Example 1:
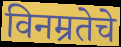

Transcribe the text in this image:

विनम्रतेचे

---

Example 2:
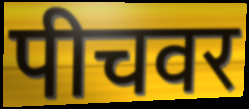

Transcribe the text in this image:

पीचवर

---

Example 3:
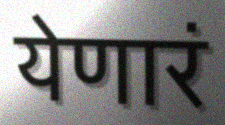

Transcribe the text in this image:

येणारं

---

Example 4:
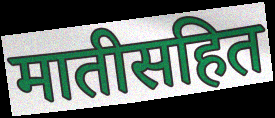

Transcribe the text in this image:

मातीसहित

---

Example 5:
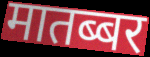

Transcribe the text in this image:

मातब्बर